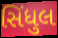
સિંધુલ